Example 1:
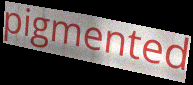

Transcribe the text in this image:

pigmented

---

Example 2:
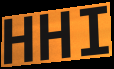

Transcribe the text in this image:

HHI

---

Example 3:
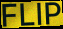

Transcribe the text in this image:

FLIP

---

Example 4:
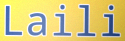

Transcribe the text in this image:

Laili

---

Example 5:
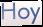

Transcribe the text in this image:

Hoy